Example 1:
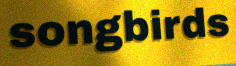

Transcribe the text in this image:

songbirds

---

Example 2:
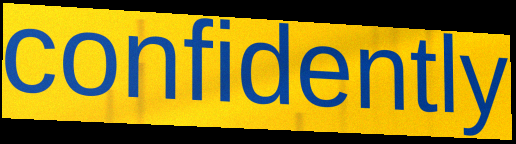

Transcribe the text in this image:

confidently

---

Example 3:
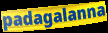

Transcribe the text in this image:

padagalanna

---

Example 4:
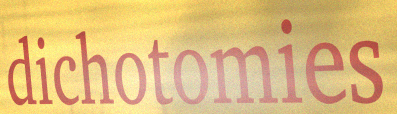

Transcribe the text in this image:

dichotomies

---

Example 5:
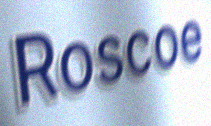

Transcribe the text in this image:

Roscoe